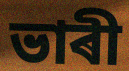
ভাৰী